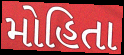
મોહિતા